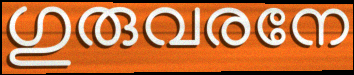
ഗുരുവരനേ